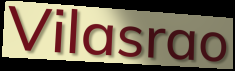
Vilasrao